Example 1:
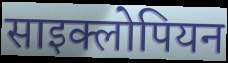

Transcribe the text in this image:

साइक्लोपियन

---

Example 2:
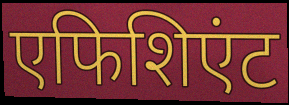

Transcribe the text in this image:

एफिशिएंट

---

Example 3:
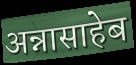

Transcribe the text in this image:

अन्नासाहेब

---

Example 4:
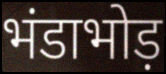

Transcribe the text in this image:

भंडाभोड़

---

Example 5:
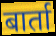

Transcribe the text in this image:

बार्ता